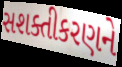
સશક્તીકરણને